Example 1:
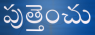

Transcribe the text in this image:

పుత్తెంచు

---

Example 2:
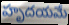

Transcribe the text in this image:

హృదయమే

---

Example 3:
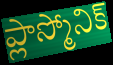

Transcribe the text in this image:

ప్లాస్మోనిక్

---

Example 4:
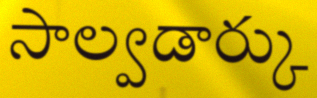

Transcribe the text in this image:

సాల్వడార్కు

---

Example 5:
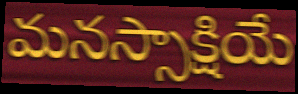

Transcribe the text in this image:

మనస్సాక్షియే